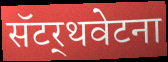
सॅटर्थवेटना